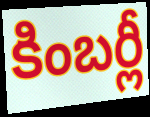
కింబర్లీ